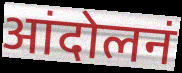
आंदोलनं